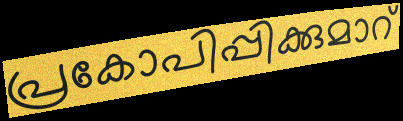
പ്രകോപിപ്പിക്കുമാറ്